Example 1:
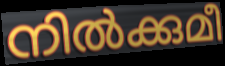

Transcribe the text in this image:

നിൽക്കുമീ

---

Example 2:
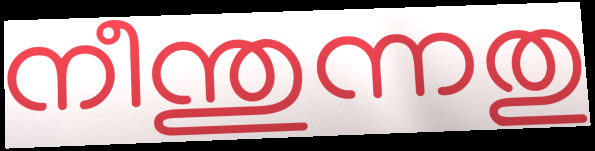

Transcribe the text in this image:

നീന്തുന്നതു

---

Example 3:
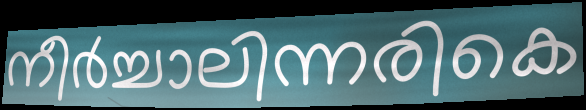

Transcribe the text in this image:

നീർച്ചാലിന്നരികെ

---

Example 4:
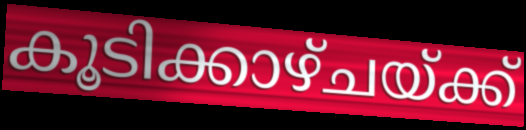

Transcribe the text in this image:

കൂടിക്കാഴ്ചയ്ക്ക്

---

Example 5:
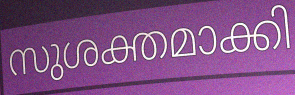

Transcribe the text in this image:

സുശക്തമാക്കി